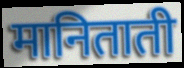
मानिताती